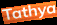
Tathya